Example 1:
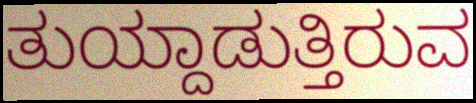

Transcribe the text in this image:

ತುಯ್ದಾಡುತ್ತಿರುವ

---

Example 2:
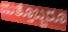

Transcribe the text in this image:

ಮತ್ತೊಬ್ಬರೂ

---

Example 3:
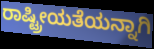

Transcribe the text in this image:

ರಾಷ್ಟ್ರೀಯತೆಯನ್ನಾಗಿ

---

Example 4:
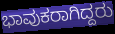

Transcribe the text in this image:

ಭಾವುಕರಾಗಿದ್ದರು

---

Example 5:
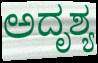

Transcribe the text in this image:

ಅದೃಶ್ಯ